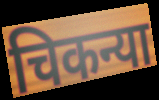
चिकन्या